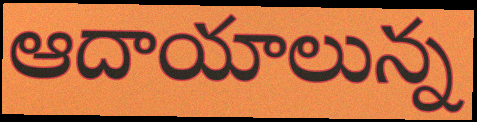
ఆదాయాలున్న